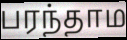
பரந்தாம